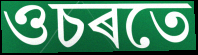
ওচৰতে